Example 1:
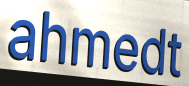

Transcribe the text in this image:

ahmedt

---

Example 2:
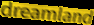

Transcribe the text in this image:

dreamland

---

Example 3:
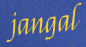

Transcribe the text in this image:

jangal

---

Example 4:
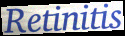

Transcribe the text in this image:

Retinitis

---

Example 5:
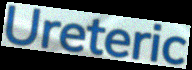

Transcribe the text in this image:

Ureteric